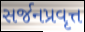
સર્જનપ્રવૃત્ત